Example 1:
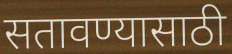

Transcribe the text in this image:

सतावण्यासाठी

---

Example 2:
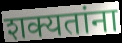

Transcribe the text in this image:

शक्यतांना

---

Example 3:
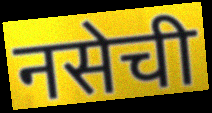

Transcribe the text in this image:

नसेची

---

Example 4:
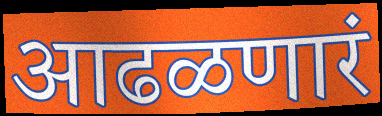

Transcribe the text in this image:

आढळणारं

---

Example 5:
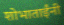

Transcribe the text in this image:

शोभाताईंनी